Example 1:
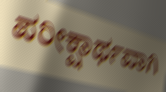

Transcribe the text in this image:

ಪರೀಕ್ಷಾರ್ಥವಾಗಿ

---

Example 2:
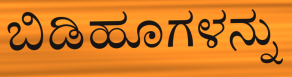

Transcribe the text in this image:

ಬಿಡಿಹೂಗಳನ್ನು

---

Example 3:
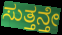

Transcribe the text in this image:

ಸುತ್ತನ್ತೇ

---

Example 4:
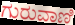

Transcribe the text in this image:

ಗುರುವಾಣಿ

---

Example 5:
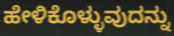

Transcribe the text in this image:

ಹೇಳಿಕೊಳ್ಳುವುದನ್ನು